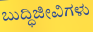
ಬುದ್ಧಿಜೀವಿಗಳು